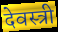
देवस्त्री